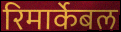
रिमार्केबल